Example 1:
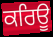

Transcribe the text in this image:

ਕਰਿਊ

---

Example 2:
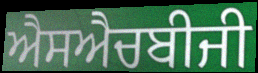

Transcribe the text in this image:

ਐਸਐਚਬੀਜੀ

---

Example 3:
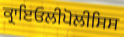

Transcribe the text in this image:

ਕ੍ਰਾਇਓਲੀਪੋਲੀਸਿਸ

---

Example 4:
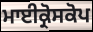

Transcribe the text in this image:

ਮਾਈਕ੍ਰੋਸਕੋਪ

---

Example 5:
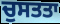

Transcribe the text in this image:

ਚੁਸਤਤਾ